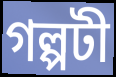
গল্পটী